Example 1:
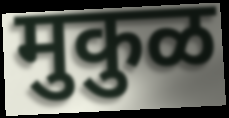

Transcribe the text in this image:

मुकुळ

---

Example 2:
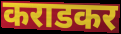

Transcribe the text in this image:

कराडकर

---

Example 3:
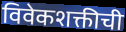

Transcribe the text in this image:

विवेकशक्तीची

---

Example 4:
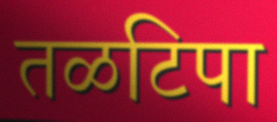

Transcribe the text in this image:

तळटिपा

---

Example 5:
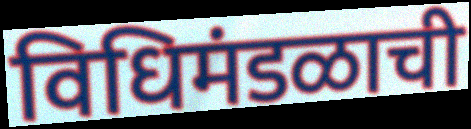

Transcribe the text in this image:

विधिमंडळाची